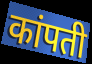
कांपती